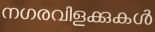
നഗരവിളക്കുകൾ